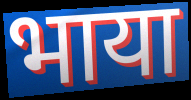
भाया